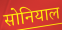
सोनियाल